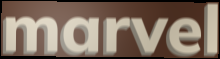
marvel